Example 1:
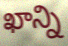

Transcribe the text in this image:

ఖాన్ని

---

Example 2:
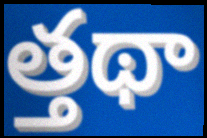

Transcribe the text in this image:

త్తథా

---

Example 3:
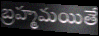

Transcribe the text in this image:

బ్రహ్మమయితే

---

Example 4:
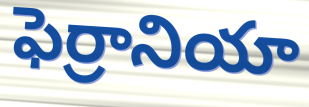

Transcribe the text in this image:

ఫెర్రానియా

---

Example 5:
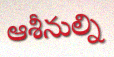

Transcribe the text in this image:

ఆశీనుల్ని